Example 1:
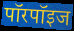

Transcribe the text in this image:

पॉरपॉइज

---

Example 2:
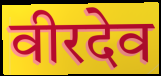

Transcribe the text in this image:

वीरदेव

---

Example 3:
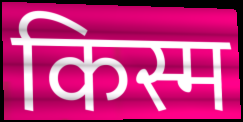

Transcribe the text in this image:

किस्म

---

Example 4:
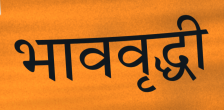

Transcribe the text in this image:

भाववृद्धी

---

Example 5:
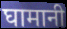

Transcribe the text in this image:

घामानी